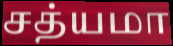
சத்யமா